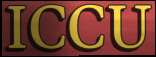
ICCU